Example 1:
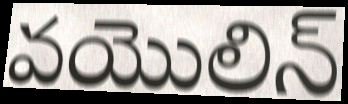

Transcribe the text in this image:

వయొలిన్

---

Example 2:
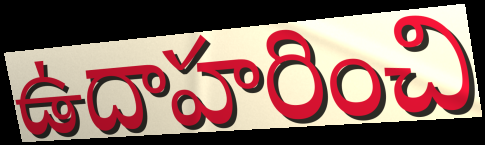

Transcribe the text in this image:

ఉదాహరించి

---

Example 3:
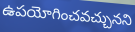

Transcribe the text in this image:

ఉపయోగించవచ్చునని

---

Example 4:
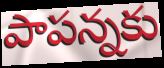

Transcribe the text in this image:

పాపన్నకు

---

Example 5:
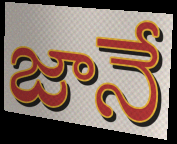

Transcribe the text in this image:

జానే